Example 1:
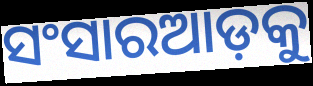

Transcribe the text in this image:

ସଂସାରଆଡ଼କୁ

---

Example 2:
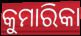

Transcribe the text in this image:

କୁମାରିକା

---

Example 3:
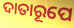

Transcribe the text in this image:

ଦାତାରୂପେ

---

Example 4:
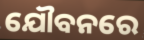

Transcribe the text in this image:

ଯୌବନରେ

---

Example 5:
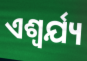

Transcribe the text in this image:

ଏଶ୍ଵର୍ଯ୍ୟ